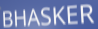
BHASKER